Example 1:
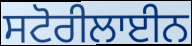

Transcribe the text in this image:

ਸਟੋਰੀਲਾਈਨ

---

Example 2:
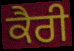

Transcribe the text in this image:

ਕੈਰੀ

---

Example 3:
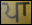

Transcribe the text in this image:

ਪਾ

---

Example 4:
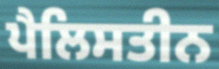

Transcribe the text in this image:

ਪੈਲਿਸਤੀਨ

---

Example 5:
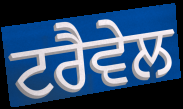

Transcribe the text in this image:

ਟਰੈਵੇਲ